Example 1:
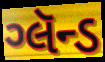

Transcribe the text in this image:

ગ્લૅન્ડ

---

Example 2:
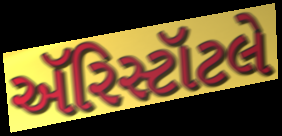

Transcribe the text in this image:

ઍરિસ્ટૉટલે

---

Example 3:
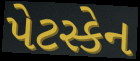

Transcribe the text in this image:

પેટસ્કેન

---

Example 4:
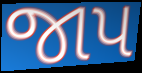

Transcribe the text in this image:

જાપ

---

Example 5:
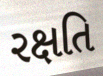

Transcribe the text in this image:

રક્ષતિ